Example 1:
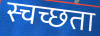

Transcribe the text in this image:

स्चच्छता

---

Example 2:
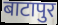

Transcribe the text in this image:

बाटापुर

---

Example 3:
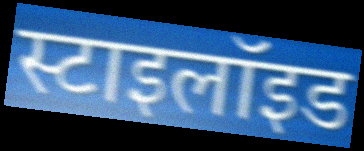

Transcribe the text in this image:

स्टाइलॉइड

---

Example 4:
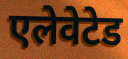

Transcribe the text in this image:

एलेवेटेड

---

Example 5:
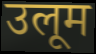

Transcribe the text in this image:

उलूम